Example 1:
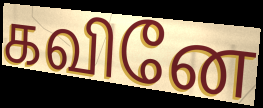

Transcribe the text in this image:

கவினே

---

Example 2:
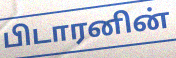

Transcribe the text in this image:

பிடாரனின்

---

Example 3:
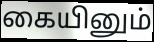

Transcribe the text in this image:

கையினும்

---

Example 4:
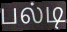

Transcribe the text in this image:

பல்டி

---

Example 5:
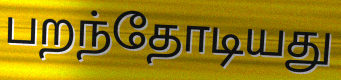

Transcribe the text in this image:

பறந்தோடியது